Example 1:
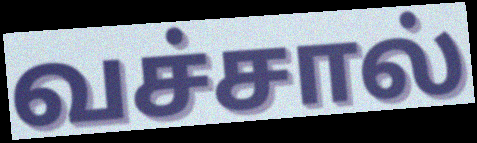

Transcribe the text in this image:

வச்சால்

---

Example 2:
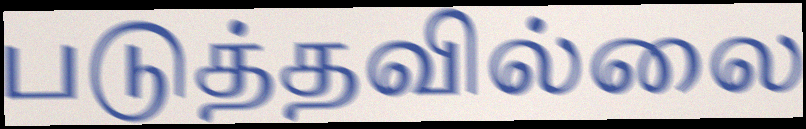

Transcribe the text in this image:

படுத்தவில்லை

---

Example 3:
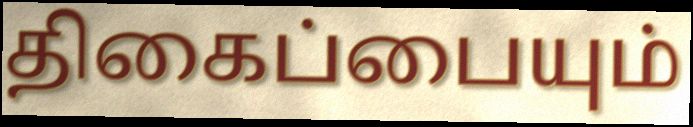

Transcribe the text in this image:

திகைப்பையும்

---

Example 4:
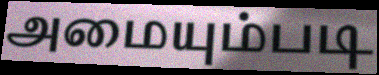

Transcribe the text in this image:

அமையும்படி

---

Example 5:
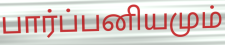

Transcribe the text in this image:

பார்ப்பனியமும்